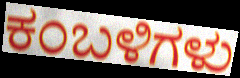
ಕಂಬಳಿಗಳು